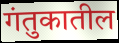
गंतुकातील